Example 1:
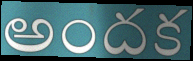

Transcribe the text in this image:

అందక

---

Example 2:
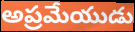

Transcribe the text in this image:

అప్రమేయుడు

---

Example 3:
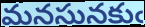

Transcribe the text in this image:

మనసునకుఁ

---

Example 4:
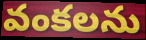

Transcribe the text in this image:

వంకలను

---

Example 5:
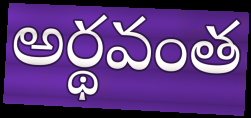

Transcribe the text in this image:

అర్థవంత